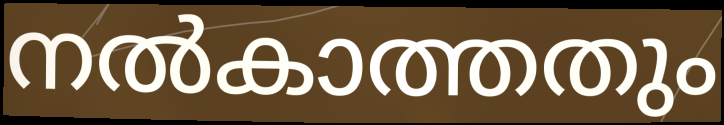
നൽകാത്തതും